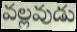
వల్లవుడు